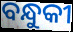
ବନ୍ଧୁକୀ